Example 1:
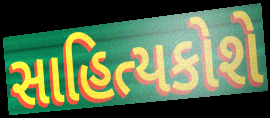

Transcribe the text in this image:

સાહિત્યકોશે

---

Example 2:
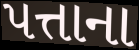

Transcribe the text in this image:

પત્તાના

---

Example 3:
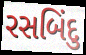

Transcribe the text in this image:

રસબિંદુ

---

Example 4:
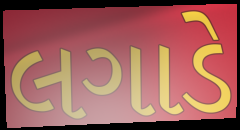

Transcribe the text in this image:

લગાડે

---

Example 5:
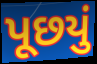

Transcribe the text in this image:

પૂછયું